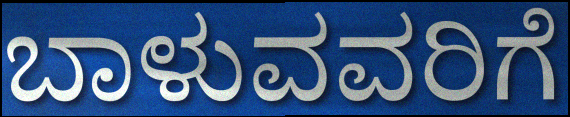
ಬಾಳುವವರಿಗೆ